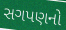
સગપણનો